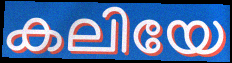
കലിയേ